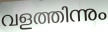
വളത്തിന്നും